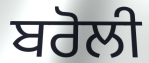
ਬਰੋਲੀ